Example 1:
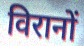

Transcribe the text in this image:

विरानों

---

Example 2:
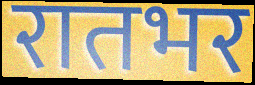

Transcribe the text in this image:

रातभर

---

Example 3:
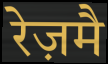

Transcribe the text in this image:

रेज़मै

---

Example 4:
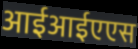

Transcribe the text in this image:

आईआईएएस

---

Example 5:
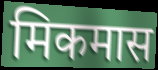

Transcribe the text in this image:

मिकमास